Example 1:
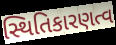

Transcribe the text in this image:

સ્થિતિકારણત્વ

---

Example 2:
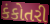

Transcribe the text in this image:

કંકોતરી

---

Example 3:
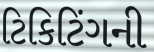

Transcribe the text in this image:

ટિકિટિંગની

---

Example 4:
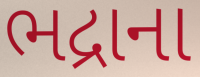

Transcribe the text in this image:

ભદ્રાના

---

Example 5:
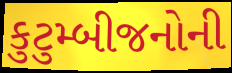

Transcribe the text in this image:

કુટુમ્બીજનોની